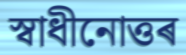
স্বাধীনোত্তৰ